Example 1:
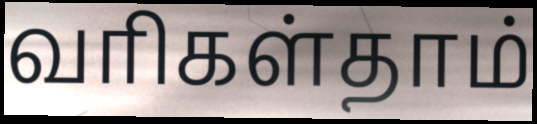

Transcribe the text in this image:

வரிகள்தாம்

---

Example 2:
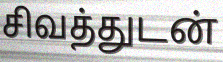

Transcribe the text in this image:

சிவத்துடன்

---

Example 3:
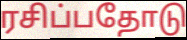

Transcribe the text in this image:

ரசிப்பதோடு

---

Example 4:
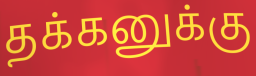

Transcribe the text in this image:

தக்கனுக்கு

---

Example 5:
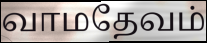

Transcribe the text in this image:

வாமதேவம்